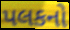
પલકનો